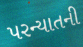
પરન્યાતની